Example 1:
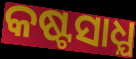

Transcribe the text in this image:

କଷ୍ଟସାଧ୍ଯ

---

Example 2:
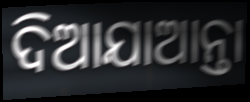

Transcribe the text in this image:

ଦିଆଯାଆନ୍ତା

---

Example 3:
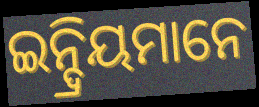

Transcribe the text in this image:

ଇନ୍ଦ୍ରିୟମାନେ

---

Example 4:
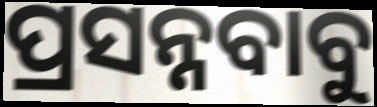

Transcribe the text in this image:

ପ୍ରସନ୍ନବାବୁ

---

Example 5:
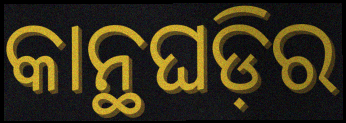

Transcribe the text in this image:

କାନ୍ଥଘଡ଼ିର